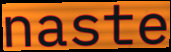
naste